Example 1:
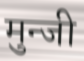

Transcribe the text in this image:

मुन्जी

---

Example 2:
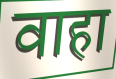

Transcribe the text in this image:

वाहा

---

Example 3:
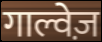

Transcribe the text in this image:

गाल्वेज़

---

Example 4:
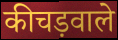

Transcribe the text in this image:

कीचड़वाले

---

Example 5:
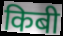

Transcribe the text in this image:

किबी